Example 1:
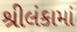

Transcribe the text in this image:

શ્રીલંકામાં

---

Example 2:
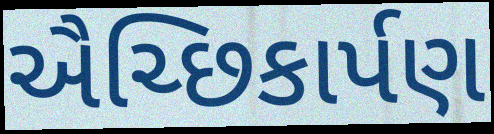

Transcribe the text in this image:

ઐચ્છિકાર્પણ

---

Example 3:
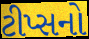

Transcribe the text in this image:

ટીપ્સનો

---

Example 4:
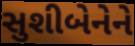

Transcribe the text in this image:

સુશીબેનેને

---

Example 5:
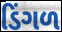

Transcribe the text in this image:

ડિંગળ